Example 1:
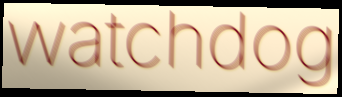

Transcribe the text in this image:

watchdog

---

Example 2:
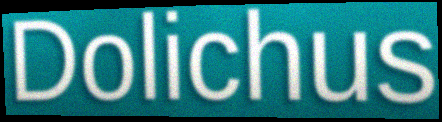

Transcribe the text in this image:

Dolichus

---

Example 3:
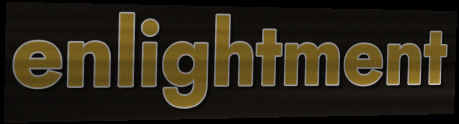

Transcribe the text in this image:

enlightment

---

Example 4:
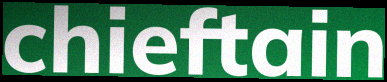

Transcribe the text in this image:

chieftain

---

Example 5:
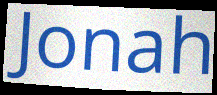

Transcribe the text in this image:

Jonah